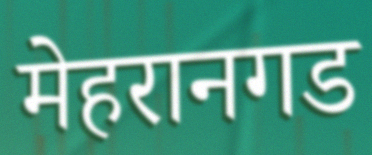
मेहरानगड